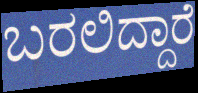
ಬರಲಿದ್ದಾರೆ